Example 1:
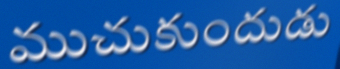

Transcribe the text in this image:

ముచుకుందుడు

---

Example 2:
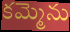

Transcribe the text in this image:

కమ్మెను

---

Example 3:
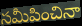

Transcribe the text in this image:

సమీపించినా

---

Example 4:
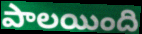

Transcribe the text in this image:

పాలయింది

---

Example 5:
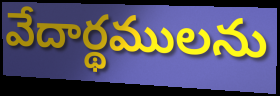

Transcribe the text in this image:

వేదార్థములను